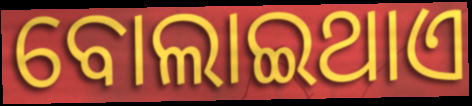
ବୋଲାଇଥାଏ